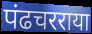
पंढचरराया